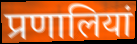
प्रणालियां